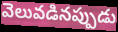
వెలువడినప్పుడు